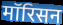
मॉरिसन